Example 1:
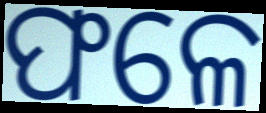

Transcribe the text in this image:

ଫଳେ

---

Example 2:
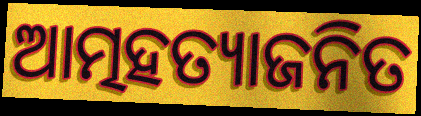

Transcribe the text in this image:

ଆତ୍ମହତ୍ୟାଜନିତ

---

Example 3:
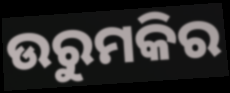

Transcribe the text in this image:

ଉରୁମକିର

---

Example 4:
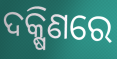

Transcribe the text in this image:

ଦକ୍ଷିଣରେ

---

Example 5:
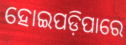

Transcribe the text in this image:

ହୋଇପଡ଼ିପାରେ